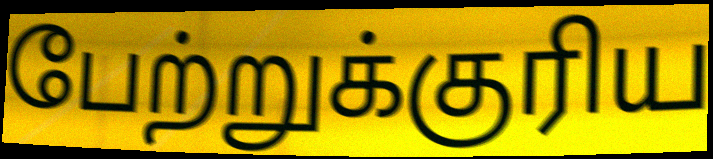
பேற்றுக்குரிய